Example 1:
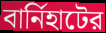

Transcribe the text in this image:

বার্নিহাটের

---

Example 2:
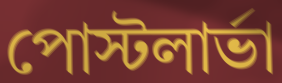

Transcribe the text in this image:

পোস্টলার্ভা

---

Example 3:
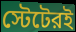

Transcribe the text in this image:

স্টেটেরই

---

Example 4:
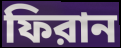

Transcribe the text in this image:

ফিরান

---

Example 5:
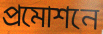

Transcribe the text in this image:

প্রমোশনে